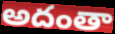
అదంతా